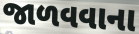
જાળવવાના